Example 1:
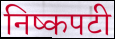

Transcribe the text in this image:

निष्कपटी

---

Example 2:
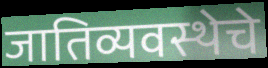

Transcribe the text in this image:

जातिव्यवस्थेचे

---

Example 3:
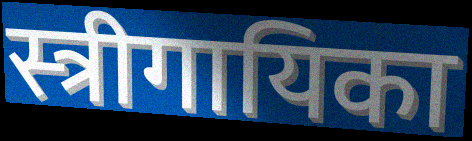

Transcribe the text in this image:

स्त्रीगायिका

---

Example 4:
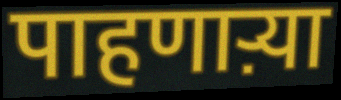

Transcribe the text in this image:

पाहणाऱ्‍या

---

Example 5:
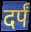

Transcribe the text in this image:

दर्पं